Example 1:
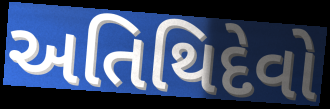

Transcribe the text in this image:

અતિથિદેવો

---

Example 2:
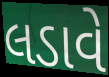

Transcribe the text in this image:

લડાવે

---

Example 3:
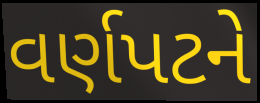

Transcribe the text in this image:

વર્ણપટને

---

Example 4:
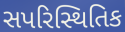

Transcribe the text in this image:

સપરિસ્થિતિક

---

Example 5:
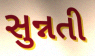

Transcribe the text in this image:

સુન્નતી